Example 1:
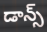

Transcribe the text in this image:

డాన్స్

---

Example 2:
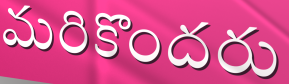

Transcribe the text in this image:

మరికొందరు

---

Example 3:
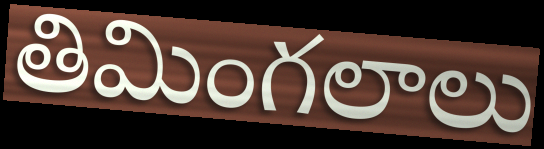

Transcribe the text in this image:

తిమింగలాలు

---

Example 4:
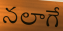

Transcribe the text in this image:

నలాగే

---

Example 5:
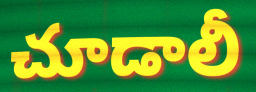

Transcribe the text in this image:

చూడాలీ